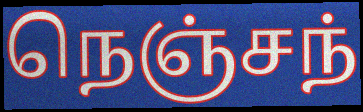
நெஞ்சந்